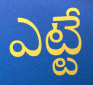
ఎట్టే